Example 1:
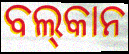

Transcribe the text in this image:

ବଲ୍‌କାନ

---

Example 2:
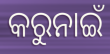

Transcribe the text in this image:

କରୁନାଇଁ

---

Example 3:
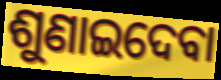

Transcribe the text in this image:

ଶୁଣାଇଦେବା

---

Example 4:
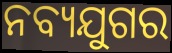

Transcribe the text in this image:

ନବ୍ୟଯୁଗର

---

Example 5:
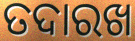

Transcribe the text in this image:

ତଦାରଖ